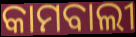
କାମବାଲୀ